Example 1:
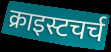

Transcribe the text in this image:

क्राइस्टचर्च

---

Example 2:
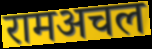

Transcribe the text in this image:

रामअचल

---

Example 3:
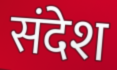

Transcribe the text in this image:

संदेश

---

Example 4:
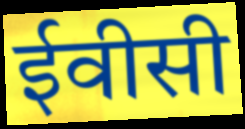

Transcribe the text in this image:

ईवीसी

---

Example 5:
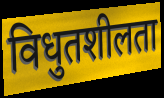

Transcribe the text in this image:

विधुतशीलता